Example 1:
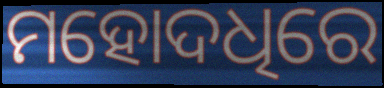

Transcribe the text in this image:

ମହୋଦଧିରେ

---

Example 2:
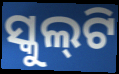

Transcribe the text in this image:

ସ୍କୁଲ୍‌ଟି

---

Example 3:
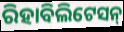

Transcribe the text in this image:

ରିହାବିଲିଟେସନ୍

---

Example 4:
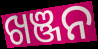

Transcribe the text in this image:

ଖଞ୍ଜନ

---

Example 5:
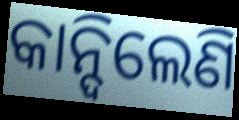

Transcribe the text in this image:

କାନ୍ଦିଲେଣି